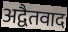
अद्वैतवाद